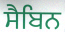
ਸੈਬਿਨ